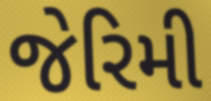
જેરિમી